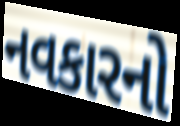
નવકારનો